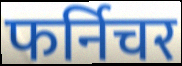
फर्निचर